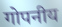
गोपनीय